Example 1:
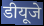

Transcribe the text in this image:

डीयूजे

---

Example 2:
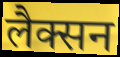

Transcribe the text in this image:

लैक्सन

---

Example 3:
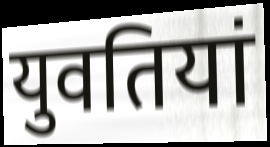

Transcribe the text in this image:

युवतियां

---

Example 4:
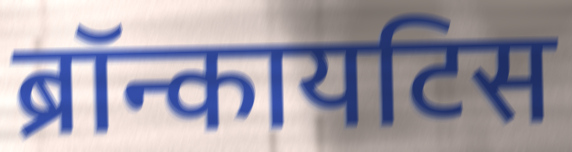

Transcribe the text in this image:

ब्रॉन्कायटिस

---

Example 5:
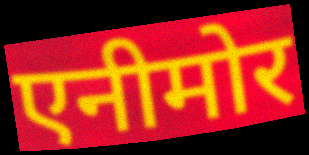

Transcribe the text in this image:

एनीमोर